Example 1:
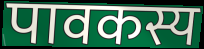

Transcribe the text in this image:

पावकस्य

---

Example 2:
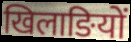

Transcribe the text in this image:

खिलाङियों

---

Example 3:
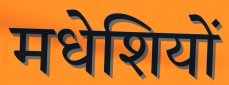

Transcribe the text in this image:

मधेशियों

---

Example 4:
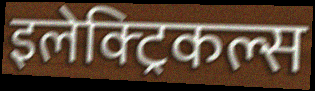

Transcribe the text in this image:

इलेक्ट्रिकल्‍स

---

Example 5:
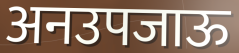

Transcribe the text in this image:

अनउपजाऊ